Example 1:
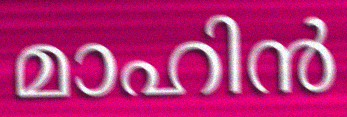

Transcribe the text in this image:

മാഹിൻ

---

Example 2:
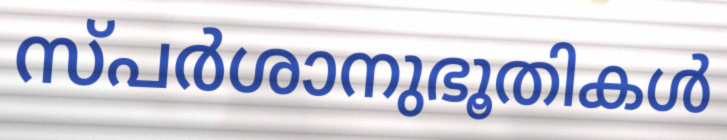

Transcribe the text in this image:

സ്പർശാനുഭൂതികൾ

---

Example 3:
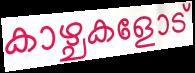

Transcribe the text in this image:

കാഴ്ചകളോട്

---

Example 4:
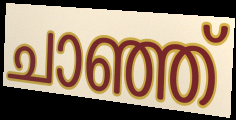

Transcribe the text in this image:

ചാഞ്ഞ്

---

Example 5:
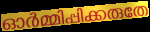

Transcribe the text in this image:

ഓർമ്മിപ്പിക്കരുതേ